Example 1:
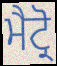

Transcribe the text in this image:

ਮੈਟ੍ਰੋ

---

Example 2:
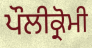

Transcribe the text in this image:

ਪੌਲੀਕ੍ਰੋਮੀ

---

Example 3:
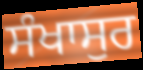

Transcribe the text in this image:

ਸੰਖਾਸੁਰ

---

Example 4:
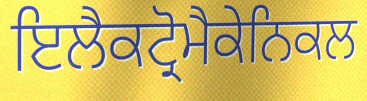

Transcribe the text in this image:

ਇਲੈਕਟ੍ਰੋਮੈਕੇਨਿਕਲ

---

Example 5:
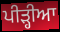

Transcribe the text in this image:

ਪੀੜ੍ਹੀਆ